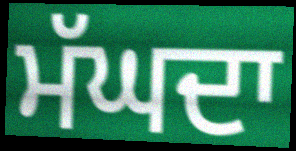
ਮੱਘਦਾ